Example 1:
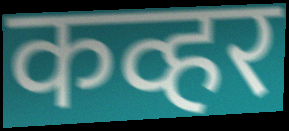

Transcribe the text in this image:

कव्हर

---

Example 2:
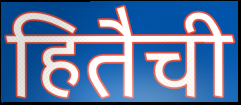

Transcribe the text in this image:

हितैची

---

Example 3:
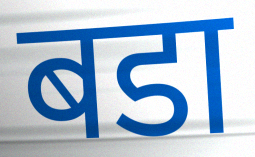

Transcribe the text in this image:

बडा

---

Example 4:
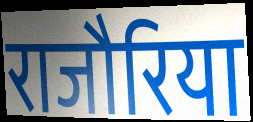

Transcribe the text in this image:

राजौरिया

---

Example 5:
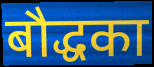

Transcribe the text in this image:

बौद्धका